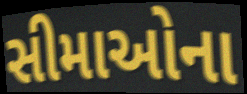
સીમાઓના